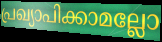
പ്രഖ്യാപിക്കാമല്ലോ